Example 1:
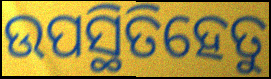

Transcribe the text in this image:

ଉପସ୍ଥିତିହେତୁ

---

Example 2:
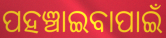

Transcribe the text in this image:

ପହଞ୍ଚାଇବାପାଇଁ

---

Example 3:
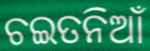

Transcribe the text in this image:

ଚଇତନିଆଁ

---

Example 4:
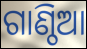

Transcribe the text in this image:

ଗାଣ୍ଠିଆ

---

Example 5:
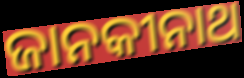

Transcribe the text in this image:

ଜାନକୀନାଥ